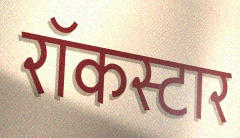
रॉकस्टार